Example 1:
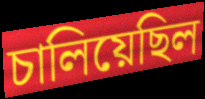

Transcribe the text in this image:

চালিয়েছিল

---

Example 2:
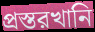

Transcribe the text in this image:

প্রস্তরখানি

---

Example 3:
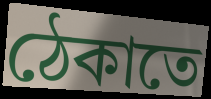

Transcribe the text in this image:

ঠেকাতে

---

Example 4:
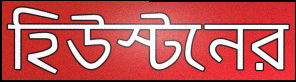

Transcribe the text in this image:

হিউস্টনের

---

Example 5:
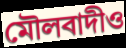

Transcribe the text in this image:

মৌলবাদীও